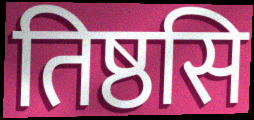
तिष्ठसि